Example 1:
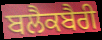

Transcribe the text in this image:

ਬਲੈਕਬੈਰੀ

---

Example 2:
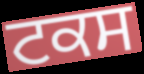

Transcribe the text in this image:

ਟਕਸ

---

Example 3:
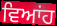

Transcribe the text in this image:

ਵਿਆਂਹ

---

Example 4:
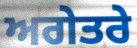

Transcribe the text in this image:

ਅਗੇਤਰੇ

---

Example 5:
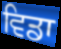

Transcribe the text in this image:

ਵਿਡਾ